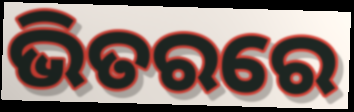
ଭିତରରେ